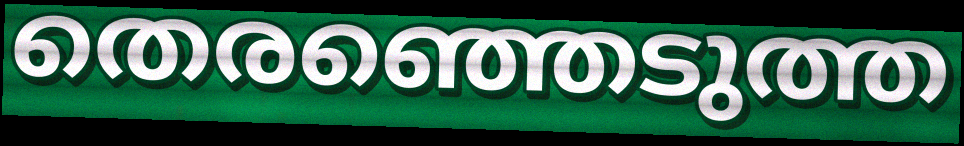
തെരഞ്ഞെടുത്ത